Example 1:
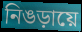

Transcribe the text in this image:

নিঙড়ায়ে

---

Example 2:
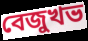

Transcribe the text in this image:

বেজুখভ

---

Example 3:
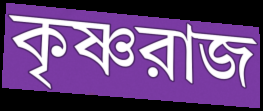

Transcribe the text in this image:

কৃষ্ণরাজ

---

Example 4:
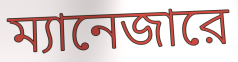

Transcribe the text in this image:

ম্যানেজারে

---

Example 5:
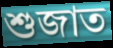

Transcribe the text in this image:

শুজাত